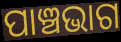
ପାଞ୍ଚଭାଗ